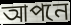
আপনে